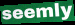
seemly